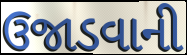
ઉજાડવાની